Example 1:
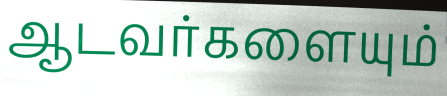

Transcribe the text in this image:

ஆடவர்களையும்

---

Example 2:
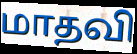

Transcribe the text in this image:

மாதவி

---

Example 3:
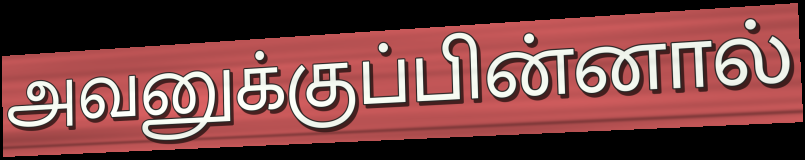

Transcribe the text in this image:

அவனுக்குப்பின்னால்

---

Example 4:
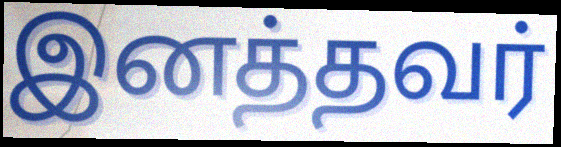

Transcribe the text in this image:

இனத்தவர்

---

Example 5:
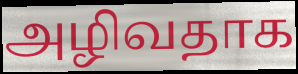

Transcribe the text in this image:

அழிவதாக